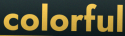
colorful